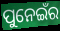
ପୁନେଇଁର